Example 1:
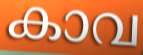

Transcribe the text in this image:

കാവ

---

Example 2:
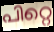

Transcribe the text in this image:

പിറ്റെ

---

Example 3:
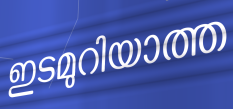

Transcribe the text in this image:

ഇടമുറിയാത്ത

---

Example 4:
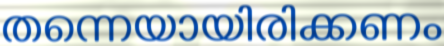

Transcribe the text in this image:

തന്നെയായിരിക്കണം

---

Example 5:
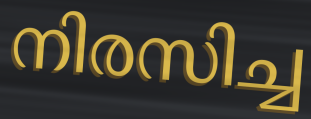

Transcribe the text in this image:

നിരസിച്ച